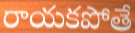
రాయకపోతే